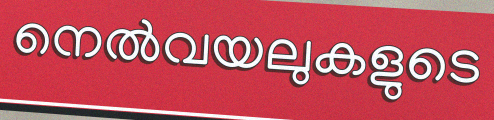
നെൽവയലുകളുടെ